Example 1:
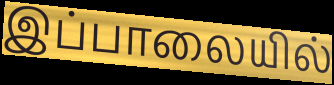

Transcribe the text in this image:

இப்பாலையில்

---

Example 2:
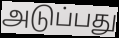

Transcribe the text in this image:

அடுப்பது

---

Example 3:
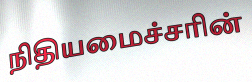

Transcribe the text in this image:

நிதியமைச்சரின்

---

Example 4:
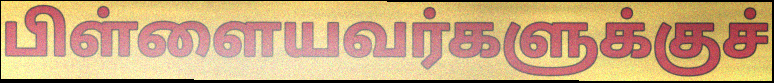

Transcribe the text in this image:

பிள்ளையவர்களுக்குச்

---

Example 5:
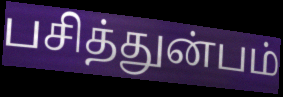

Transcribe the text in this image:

பசித்துன்பம்